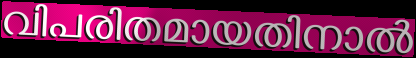
വിപരിതമായതിനാൽ